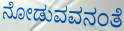
ನೋಡುವವನಂತೆ